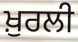
ਖ਼ੁਰਲੀ